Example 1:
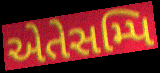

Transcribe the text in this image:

એતેસમ્પિ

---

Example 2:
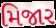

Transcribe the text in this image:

મિજાર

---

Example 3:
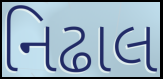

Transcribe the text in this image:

નિઢાલ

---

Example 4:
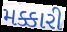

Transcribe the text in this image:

મક્કારી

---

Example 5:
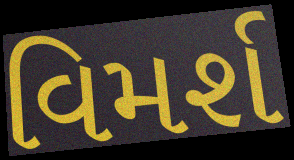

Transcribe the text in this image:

વિમર્શ